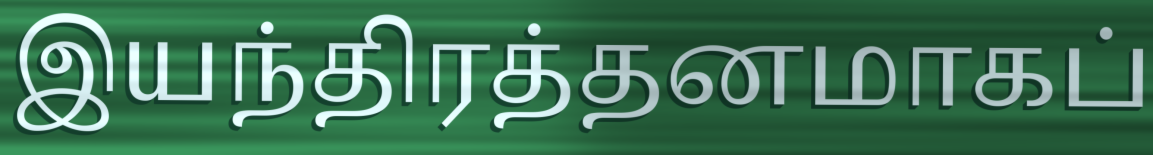
இயந்திரத்தனமாகப்